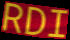
RDI